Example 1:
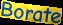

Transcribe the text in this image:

Borate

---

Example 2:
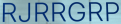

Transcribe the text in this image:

RJRRGRP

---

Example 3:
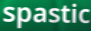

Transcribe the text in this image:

spastic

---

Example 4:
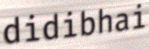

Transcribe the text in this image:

didibhai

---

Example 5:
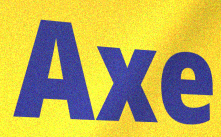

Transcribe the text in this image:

Axe